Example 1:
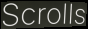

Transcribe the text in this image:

Scrolls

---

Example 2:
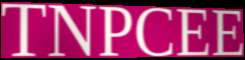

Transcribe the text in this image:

TNPCEE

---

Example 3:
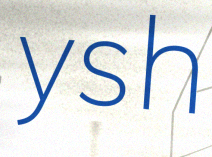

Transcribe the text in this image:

ysh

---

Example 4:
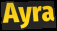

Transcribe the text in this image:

Ayra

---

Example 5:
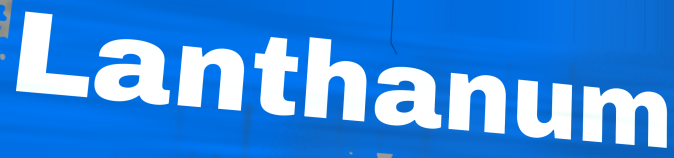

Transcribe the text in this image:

Lanthanum